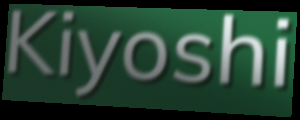
Kiyoshi